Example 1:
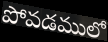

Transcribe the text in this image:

పోవడములో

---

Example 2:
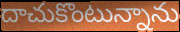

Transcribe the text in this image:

దాచుకొంటున్నాను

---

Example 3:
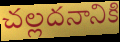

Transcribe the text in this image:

చల్లదనానికి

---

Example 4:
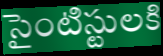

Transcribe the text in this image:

సైంటిస్టులకి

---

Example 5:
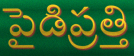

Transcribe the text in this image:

పైడిప్రత్తి